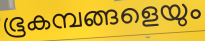
ഭൂകമ്പങ്ങളെയും